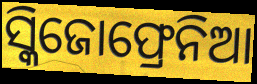
ସ୍କିଜୋଫ୍ରେନିଆ